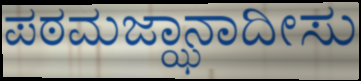
ಪಠಮಜ್ಝಾನಾದೀಸು